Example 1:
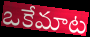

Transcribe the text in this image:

ఒకేమాట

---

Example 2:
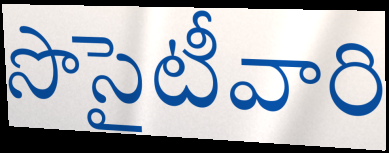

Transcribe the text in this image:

సొసైటీవారి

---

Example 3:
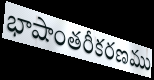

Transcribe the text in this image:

భాషాంతరీకరణము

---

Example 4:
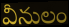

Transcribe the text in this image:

వీనులం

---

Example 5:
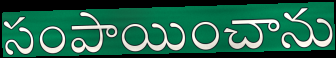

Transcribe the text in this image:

సంపాయించాను